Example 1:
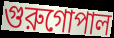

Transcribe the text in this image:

গুরুগোপাল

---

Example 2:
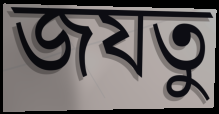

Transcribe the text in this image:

জযতু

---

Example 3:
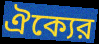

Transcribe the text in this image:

ঐক্যের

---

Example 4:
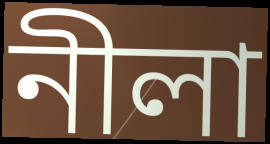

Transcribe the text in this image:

নীলা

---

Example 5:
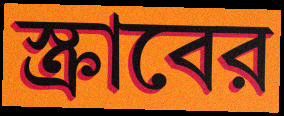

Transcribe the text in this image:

স্ক্রাবের